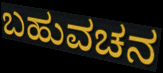
ಬಹುವಚನ